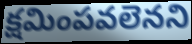
క్షమింపవలెనని